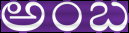
అంబ